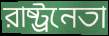
রাষ্ট্রনেতা